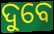
ଦୁବେ